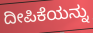
ದೀಪಿಕೆಯನ್ನು